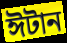
ঈটান